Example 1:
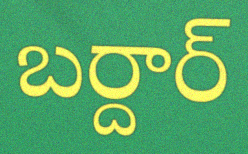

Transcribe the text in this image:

బర్దార్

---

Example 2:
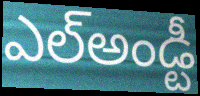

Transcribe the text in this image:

ఎల్అండ్టీ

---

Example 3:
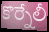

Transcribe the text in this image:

కొర్నేలీ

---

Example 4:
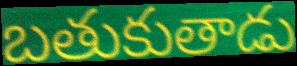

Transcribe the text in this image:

బతుకుతాడు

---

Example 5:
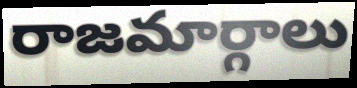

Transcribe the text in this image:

రాజమార్గాలు